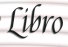
Libro